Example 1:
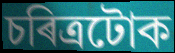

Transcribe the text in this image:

চৰিত্ৰটোক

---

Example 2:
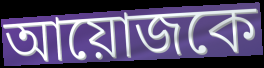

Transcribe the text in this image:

আয়োজকে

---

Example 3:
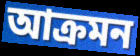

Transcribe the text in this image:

আক্ৰমন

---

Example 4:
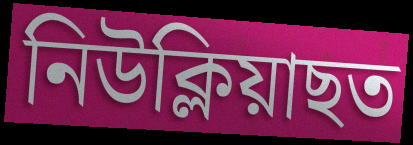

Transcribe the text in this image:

নিউক্লিয়াছত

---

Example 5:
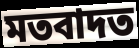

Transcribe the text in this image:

মতবাদত